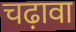
चढ़ावा